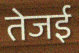
तेजई